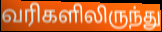
வரிகளிலிருந்து